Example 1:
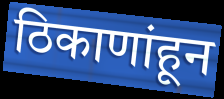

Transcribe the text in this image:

ठिकाणांहून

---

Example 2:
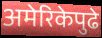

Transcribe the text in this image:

अमेरिकेपुढे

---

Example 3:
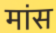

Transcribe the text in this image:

मांस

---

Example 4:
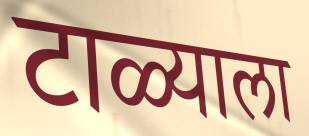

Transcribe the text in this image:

टाळ्याला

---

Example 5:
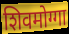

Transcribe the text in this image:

शिवमोग्गा